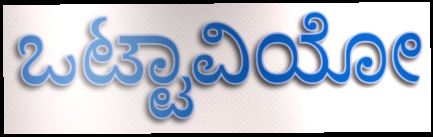
ಒಟ್ಟಾವಿಯೋ